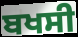
ਬਖਸੀ